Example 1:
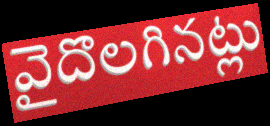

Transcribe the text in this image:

వైదొలగినట్లు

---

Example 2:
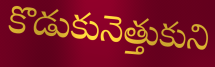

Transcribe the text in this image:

కొడుకునెత్తుకుని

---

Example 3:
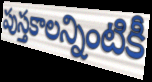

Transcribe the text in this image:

పుస్తకాలన్నింటికీ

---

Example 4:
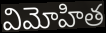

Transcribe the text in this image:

విమోహిత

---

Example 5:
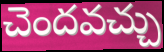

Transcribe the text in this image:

చెందవచ్చు